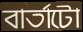
বাৰ্তাটো